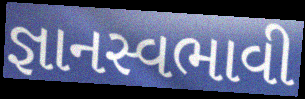
જ્ઞાનસ્વભાવી